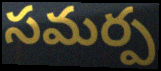
సమర్ప